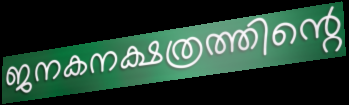
ജനകനക്ഷത്രത്തിന്റെ